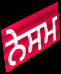
ਨੇਸਮ